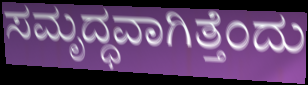
ಸಮೃದ್ಧವಾಗಿತ್ತೆಂದು